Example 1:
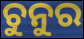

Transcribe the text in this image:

ଚୁନୁର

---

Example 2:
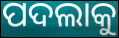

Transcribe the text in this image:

ପଦଲାକୁ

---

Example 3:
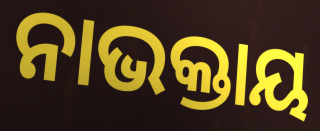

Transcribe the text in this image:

ନାଭକ୍ତାୟ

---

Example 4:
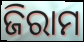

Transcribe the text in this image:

ଜିରାମ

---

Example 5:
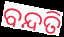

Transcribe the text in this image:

ବନ୍ଦତି